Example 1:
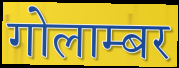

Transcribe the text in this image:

गोलाम्बर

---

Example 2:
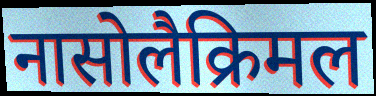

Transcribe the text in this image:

नासोलैक्रिमल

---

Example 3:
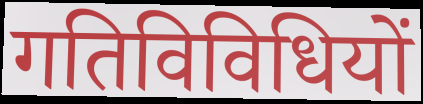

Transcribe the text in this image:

गतिविविधियों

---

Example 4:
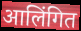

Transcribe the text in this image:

आलिंगित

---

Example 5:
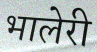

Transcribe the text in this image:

भालेरी